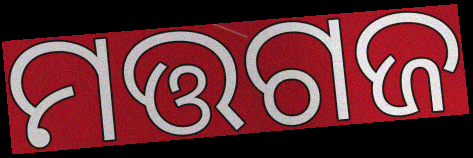
ମତ୍ତଗଜ